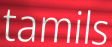
tamils